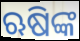
ଋଷିଙ୍କ